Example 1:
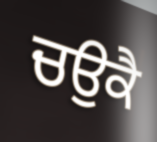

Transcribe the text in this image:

ਚਉਕੈ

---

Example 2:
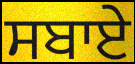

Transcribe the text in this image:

ਸਬਾਏ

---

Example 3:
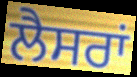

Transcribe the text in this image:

ਲੈਸਰਾਂ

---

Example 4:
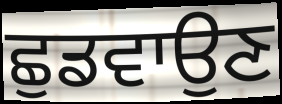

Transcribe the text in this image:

ਛੁਡਵਾਉਣ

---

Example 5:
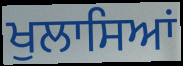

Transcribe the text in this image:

ਖੁਲਾਸਿਆਂ